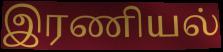
இரணியல்